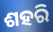
ଶହରି